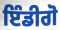
ਇੰਡੀਗੋ